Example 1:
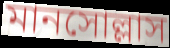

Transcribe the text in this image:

মানসোল্লাস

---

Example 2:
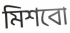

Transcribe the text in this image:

মিশবো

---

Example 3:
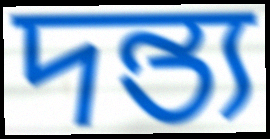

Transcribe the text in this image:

দন্ত্য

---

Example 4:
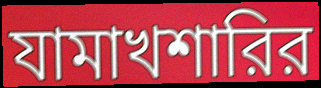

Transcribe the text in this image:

যামাখশারির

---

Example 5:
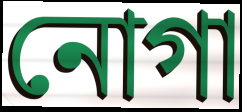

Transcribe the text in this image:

নোগা